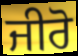
ਜੀਰੋ